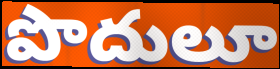
పొదులూ